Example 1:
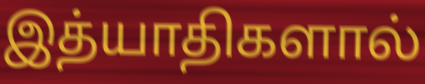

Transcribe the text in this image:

இத்யாதிகளால்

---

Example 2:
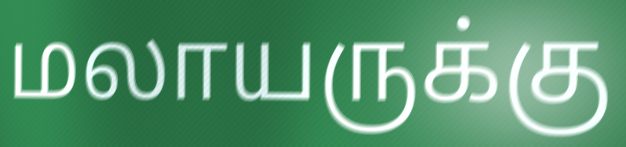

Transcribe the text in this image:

மலாயருக்கு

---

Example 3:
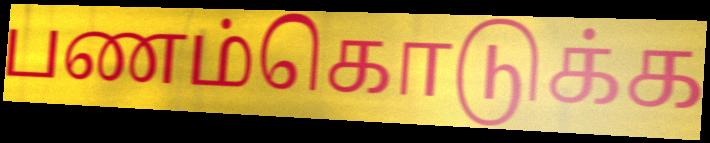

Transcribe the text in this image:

பணம்கொடுக்க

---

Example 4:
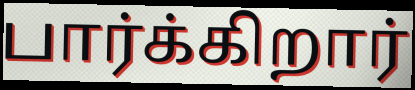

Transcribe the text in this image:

பார்க்கிறார்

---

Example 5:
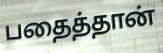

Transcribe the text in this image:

பதைத்தான்